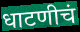
धाटणीचं